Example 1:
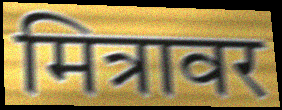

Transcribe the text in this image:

मित्रावर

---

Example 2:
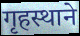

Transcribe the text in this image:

गृहस्थाने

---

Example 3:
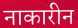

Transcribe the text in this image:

नाकारीन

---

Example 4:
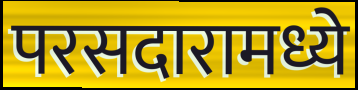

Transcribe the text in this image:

परसदारामध्ये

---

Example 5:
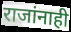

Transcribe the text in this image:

राजांनाही